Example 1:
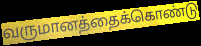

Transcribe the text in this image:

வருமானத்தைக்கொண்டு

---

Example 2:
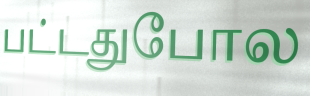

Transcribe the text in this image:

பட்டதுபோல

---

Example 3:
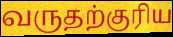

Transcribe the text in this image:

வருதற்குரிய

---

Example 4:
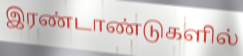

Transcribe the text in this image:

இரண்டாண்டுகளில்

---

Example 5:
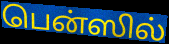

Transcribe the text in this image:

பென்ஸில்